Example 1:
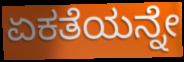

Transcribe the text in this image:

ಏಕತೆಯನ್ನೇ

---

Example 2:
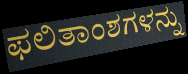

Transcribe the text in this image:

ಫಲಿತಾಂಶಗಳನ್ನು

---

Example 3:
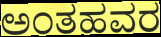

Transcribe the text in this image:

ಅಂತಹವರ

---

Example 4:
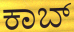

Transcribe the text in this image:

ಕಾಬ್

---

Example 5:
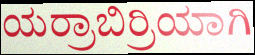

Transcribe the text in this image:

ಯರ್ರಾಬಿರ್ರಿಯಾಗಿ